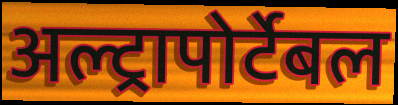
अल्ट्रापोर्टेबल